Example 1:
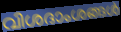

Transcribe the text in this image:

വിശദാംശങ്ങൾ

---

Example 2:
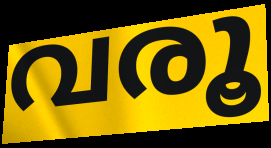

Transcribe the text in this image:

വരൂ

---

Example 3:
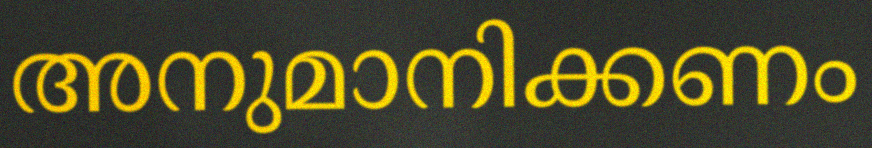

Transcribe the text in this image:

അനുമാനിക്കണം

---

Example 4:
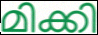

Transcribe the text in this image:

മിക്കി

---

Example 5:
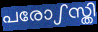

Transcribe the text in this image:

പരോഽസ്തി